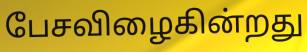
பேசவிழைகின்றது